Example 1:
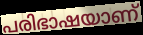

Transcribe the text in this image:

പരിഭാഷയാണ്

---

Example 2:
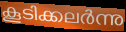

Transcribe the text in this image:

കൂടിക്കലർന്നു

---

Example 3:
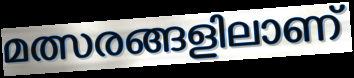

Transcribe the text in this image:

മത്സരങ്ങളിലാണ്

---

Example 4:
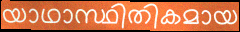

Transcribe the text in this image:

യാഥാസ്ഥിതികമായ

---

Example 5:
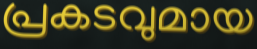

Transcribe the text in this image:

പ്രകടവുമായ